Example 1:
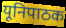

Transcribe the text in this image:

यूनिपाठक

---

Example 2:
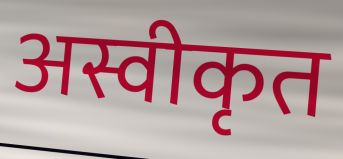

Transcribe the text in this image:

अस्‍वीकृत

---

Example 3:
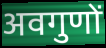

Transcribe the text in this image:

अवगुणों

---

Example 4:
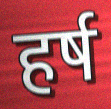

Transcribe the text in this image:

हर्ष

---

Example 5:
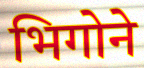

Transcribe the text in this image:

भिगोने